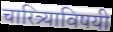
चारित्र्याविषयी